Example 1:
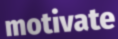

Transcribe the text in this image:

motivate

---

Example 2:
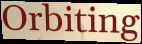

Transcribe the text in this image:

Orbiting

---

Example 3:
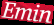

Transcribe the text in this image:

Emin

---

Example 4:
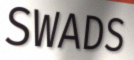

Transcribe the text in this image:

SWADS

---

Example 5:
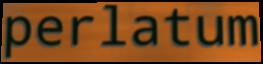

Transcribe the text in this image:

perlatum